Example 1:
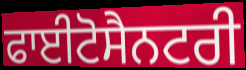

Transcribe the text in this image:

ਫਾਈਟੋਸੈਨਟਰੀ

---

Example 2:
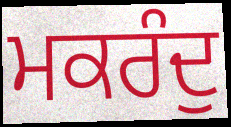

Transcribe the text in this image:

ਮਕਰੰਦੁ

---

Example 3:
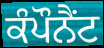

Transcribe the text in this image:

ਕੰਪੌਨੈਂਟ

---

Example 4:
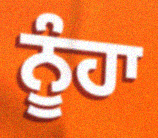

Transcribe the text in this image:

ਨੂੰਹਾ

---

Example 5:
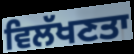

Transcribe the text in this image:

ਵਿਲੱਖਣਤਾ